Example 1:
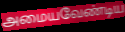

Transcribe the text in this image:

அமையவேண்டிய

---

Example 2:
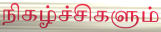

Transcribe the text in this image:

நிகழ்ச்சிகளும்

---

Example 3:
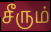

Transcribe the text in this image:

சீரும்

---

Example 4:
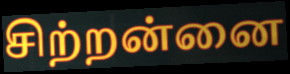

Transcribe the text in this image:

சிற்றன்னை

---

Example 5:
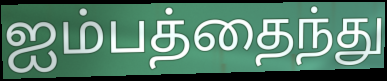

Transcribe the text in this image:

ஐம்பத்தைந்து